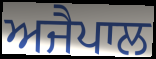
ਅਜੈਪਾਲ